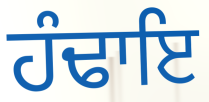
ਹੰਢਾਇ